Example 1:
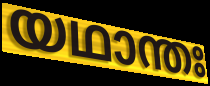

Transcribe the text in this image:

യഥാന്തഃ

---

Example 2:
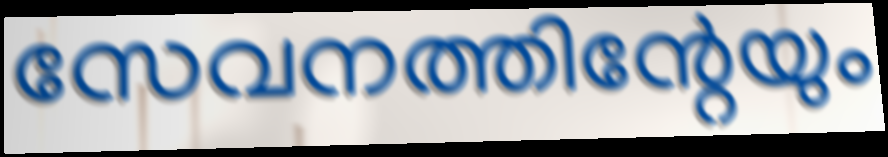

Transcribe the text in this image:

സേവനത്തിന്റേയും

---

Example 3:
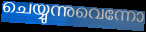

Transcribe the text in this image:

ചെയ്യുന്നുവെന്നോ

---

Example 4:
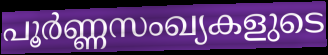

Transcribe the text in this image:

പൂർണ്ണസംഖ്യകളുടെ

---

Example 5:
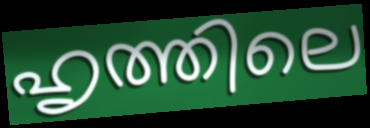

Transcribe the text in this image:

ഹൃത്തിലെ